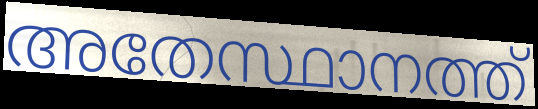
അതേസ്ഥാനത്ത്